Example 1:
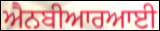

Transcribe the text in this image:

ਐਨਬੀਆਰਆਈ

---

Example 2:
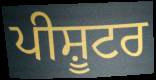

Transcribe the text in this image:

ਪੀਸ਼ੂਟਰ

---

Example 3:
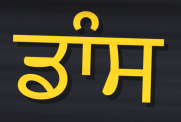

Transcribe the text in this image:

ਡਾੰਸ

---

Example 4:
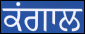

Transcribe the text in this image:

ਕਂਗਾਲ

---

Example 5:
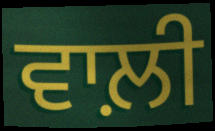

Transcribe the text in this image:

ਵਾਲ਼ੀ